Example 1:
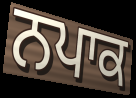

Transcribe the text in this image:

ਨਪਾਕ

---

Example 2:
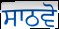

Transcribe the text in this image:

ਸਾਠਵੋ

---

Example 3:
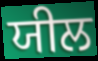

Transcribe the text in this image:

ਯੀਲ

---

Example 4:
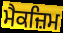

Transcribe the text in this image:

ਮੈਕਜ਼ਿਮ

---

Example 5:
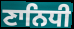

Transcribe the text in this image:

ਣਾਨਿਧੀ